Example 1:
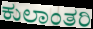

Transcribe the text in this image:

ಕುಲಾಂತರಿ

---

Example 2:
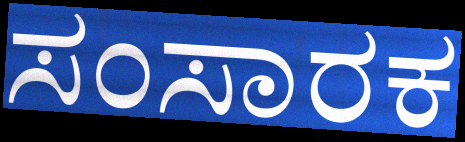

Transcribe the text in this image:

ಸಂಸಾರಕ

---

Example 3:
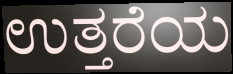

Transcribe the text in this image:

ಉತ್ತರೆಯ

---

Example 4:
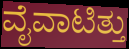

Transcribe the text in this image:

ವೈವಾಟಿತ್ತು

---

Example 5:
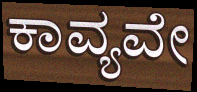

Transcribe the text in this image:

ಕಾವ್ಯವೇ